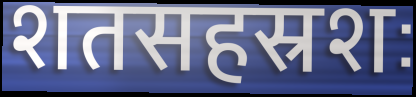
शतसहस्रशः